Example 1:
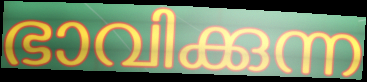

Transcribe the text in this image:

ഭാവിക്കുന്ന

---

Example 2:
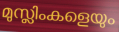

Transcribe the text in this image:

മുസ്ലിംകളെയും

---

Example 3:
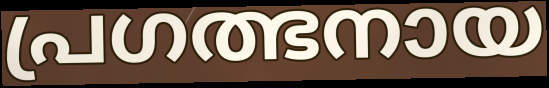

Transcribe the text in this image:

പ്രഗത്ഭനായ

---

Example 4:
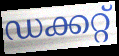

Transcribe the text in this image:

ഡക്കറ്റ്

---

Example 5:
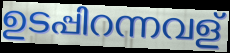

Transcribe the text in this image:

ഉടപ്പിറന്നവള്